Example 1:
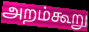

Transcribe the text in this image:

அறம்கூறு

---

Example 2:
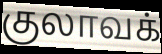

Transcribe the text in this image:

குலாவக்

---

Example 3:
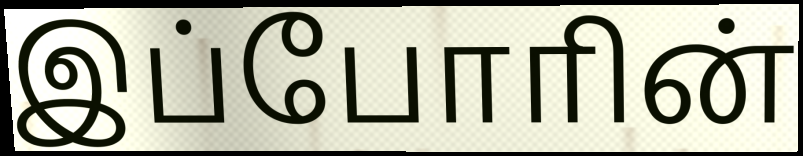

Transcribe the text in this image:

இப்போரின்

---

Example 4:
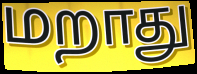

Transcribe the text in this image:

மறாது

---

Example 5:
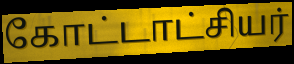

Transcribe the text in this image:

கோட்டாட்சியர்